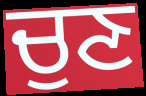
ਚੁਣ